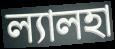
ল্যালহা